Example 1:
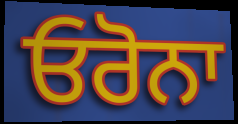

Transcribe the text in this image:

ਓਰੋਨਾ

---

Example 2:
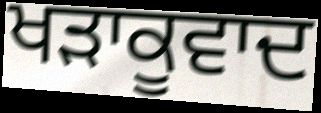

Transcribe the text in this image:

ਖੜਾਕੂਵਾਦ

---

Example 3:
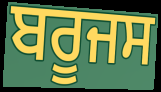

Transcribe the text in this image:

ਬਰੂਜਸ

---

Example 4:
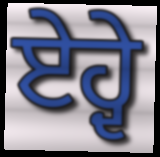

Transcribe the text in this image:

ਏਹ੍ਦੇ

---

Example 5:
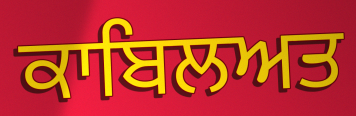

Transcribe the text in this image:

ਕਾਬਿਲਅਤ